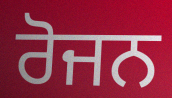
ਰੋਜਨ